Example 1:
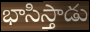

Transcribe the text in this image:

భాసిస్తాడు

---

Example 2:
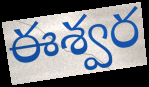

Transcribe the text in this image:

ఈశ్వర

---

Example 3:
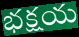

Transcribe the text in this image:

భక్షయ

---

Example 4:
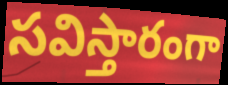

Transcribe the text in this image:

సవిస్తారంగా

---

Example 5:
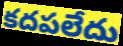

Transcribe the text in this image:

కదపలేదు